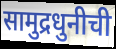
सामुद्रधुनीची